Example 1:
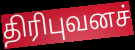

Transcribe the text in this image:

திரிபுவனச்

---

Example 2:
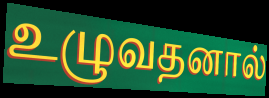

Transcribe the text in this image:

உழுவதனால்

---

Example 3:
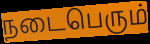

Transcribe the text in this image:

நடைபெரும்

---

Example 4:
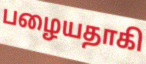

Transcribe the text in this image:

பழையதாகி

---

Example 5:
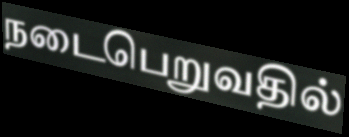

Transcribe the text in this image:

நடைபெறுவதில்